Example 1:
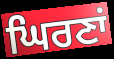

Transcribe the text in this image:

ਘਿਰਣਾਂ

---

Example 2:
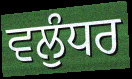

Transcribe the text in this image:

ਵਲੁੰਧਰ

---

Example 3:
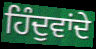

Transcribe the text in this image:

ਹਿੰਦੁਵਾਂਦੇ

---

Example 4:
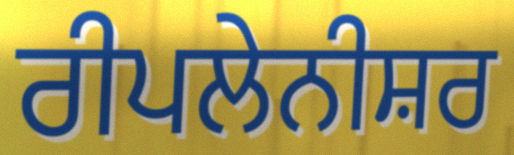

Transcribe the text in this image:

ਰੀਪਲੇਨੀਸ਼ਰ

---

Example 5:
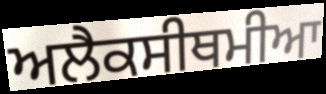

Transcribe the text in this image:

ਅਲੈਕਸੀਥਮੀਆ